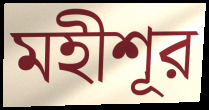
মহীশূর